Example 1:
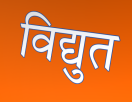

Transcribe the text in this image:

विद्युत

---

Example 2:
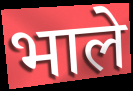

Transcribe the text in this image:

भाले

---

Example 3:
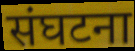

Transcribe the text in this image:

संघटना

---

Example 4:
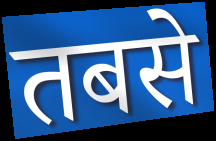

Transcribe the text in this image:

तबसे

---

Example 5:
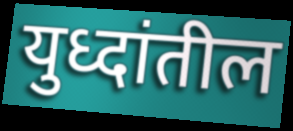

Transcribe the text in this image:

युध्दांतील